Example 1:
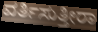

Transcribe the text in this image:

ವರ್ತಿಸುತ್ತೀರಾ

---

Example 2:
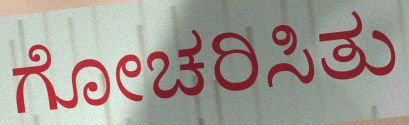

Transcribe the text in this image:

ಗೋಚರಿಸಿತು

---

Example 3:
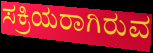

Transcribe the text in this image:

ಸಕ್ರಿಯರಾಗಿರುವ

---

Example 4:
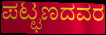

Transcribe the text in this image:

ಪಟ್ಟಣದವರ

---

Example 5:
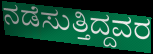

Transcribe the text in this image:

ನಡೆಸುತ್ತಿದ್ದವರ